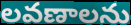
లవణాలను